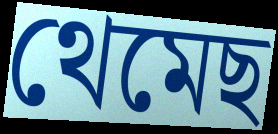
থেমেছ